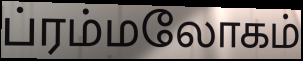
ப்ரம்மலோகம்